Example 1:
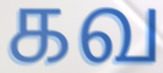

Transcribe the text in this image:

கவ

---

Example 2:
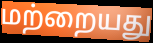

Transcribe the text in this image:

மற்றையது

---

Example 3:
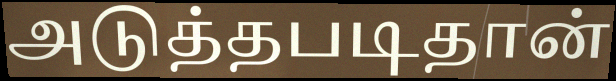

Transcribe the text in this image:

அடுத்தபடிதான்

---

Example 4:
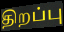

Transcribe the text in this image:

திறப்பு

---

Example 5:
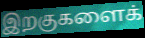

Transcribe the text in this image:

இறகுகளைக்